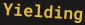
Yielding